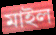
মাইল